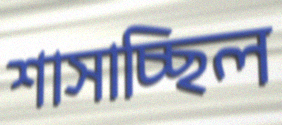
শাসাচ্ছিল